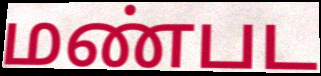
மண்பட